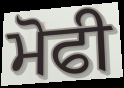
ਮੋਫੀ